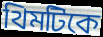
থিমটিকে